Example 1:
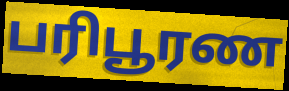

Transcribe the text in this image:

பரிபூரண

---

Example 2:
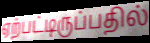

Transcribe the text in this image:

ஏற்பட்டிருப்பதில்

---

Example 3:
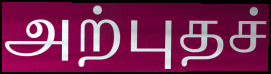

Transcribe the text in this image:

அற்புதச்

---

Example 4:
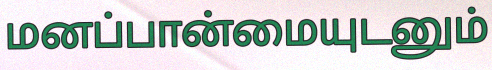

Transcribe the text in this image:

மனப்பான்மையுடனும்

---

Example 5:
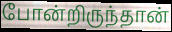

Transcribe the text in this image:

போன்றிருந்தான்